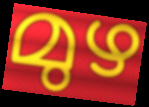
മുഴ